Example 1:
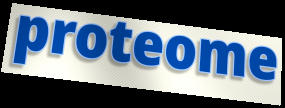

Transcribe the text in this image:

proteome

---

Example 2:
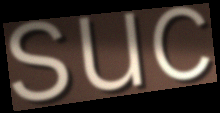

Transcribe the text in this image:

suc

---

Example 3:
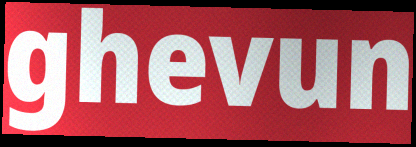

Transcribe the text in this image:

ghevun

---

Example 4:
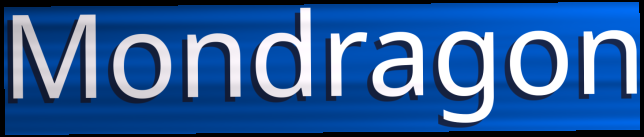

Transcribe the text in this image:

Mondragon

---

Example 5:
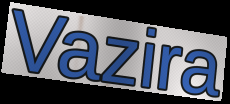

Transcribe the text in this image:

Vazira